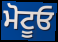
ਮੋਟੂਓ